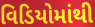
વિડિયોમાંથી